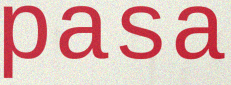
pasa